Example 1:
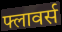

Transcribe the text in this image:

फ्लावर्स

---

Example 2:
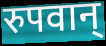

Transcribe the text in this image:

रुपवान्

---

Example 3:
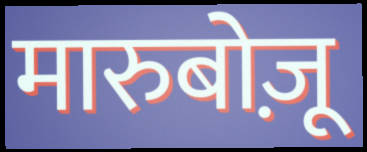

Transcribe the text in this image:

मारुबोज़ू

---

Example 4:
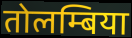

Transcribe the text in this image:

तोलम्बिया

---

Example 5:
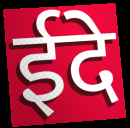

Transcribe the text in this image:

ईदे